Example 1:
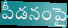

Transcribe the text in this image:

పీడనంపై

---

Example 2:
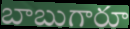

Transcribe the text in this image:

బాబుగారూ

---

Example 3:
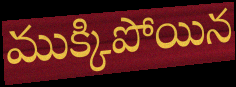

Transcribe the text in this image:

ముక్కిపోయిన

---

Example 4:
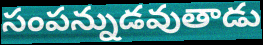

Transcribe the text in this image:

సంపన్నుడవుతాడు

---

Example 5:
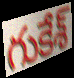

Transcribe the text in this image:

గుకేశ్